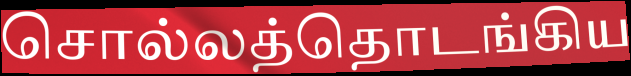
சொல்லத்தொடங்கிய